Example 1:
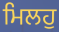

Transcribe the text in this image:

ਮਿਲਹੁ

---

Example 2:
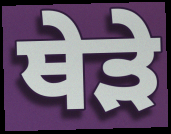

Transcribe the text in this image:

ਥੇੜੇ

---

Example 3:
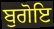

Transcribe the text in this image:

ਬੁਗੋਇ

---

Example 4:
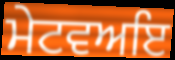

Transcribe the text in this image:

ਮੇਟਵਅਇ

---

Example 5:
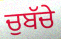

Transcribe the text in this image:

ਚੁਬੱਚੇ